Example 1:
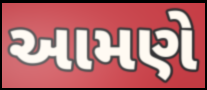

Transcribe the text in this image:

આમણે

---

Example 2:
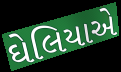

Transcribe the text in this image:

ઘેલિયાએ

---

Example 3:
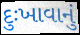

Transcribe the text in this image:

દુઃખાવાનું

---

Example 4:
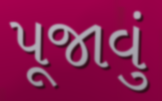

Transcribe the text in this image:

પૂજાવું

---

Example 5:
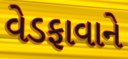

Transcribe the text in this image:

વેડફાવાને